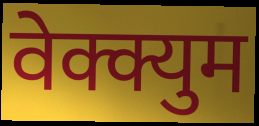
वेक्क्युम